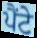
ਪੈਂਟੇ